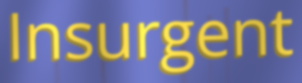
Insurgent